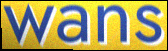
wans